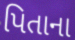
પિતાના